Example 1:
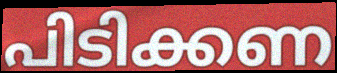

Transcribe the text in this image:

പിടിക്കണ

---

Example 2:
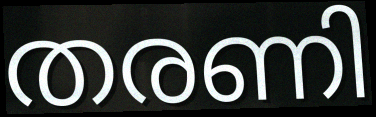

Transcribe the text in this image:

തരണി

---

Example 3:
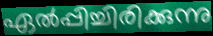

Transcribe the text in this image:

ഏൽപ്പിച്ചിരിക്കുന്നു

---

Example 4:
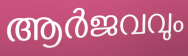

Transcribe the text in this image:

ആർജവവും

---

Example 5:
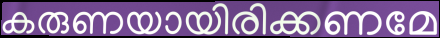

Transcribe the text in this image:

കരുണയായിരിക്കണമേ